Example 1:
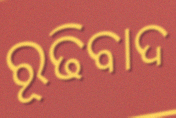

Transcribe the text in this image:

ରୂଢିବାଦ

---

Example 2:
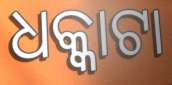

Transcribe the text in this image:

ଧକ୍କାଟା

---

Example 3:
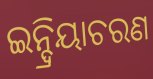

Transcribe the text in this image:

ଇନ୍ଦ୍ରିୟାଚରଣ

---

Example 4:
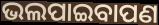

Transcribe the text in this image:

ଭଲପାଇବାପଣ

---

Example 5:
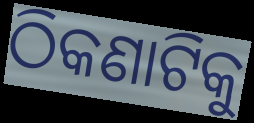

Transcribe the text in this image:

ଠିକଣାଟିକୁ